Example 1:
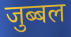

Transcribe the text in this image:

जुब्बल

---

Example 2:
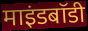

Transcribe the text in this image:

माइंडबॉडी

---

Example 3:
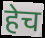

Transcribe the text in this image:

हेच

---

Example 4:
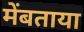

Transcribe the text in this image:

मेंबताया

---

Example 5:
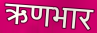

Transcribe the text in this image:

ऋणभार